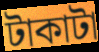
টাকাটা